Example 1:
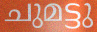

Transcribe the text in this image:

ചുമട്ടു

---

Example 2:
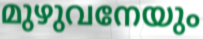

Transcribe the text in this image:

മുഴുവനേയും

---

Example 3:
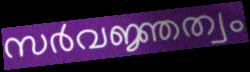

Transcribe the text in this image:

സർവജ്ഞത്വം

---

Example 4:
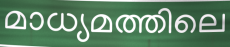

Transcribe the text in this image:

മാധ്യമത്തിലെ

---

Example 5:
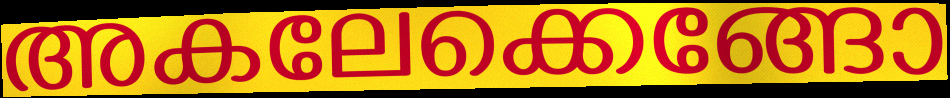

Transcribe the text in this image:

അകലേക്കെങ്ങോ